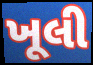
ખૂલી